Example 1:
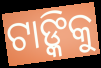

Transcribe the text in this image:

ଟାଙ୍କିକୁ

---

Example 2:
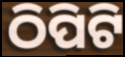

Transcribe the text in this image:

ଠିପିଟି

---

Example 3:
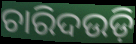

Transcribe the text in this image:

ଚାରିଦଉଡ଼ି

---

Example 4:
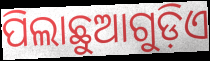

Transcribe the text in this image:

ପିଲାଛୁଆଗୁଡ଼ିଏ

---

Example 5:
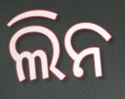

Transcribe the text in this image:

ଲିନ